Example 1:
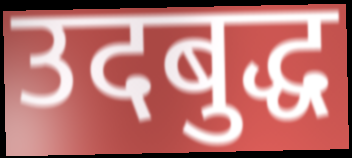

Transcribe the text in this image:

उदबुद्ध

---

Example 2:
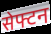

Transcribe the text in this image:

सेफ्टन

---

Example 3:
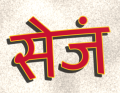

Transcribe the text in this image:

सेजं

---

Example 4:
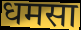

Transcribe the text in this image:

धमसा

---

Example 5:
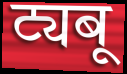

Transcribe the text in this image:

ट्यबू